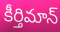
కీర్తిమాన్